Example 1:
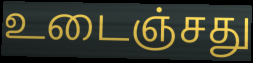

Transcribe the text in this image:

உடைஞ்சது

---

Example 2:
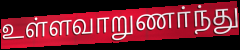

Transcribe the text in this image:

உள்ளவாறுணர்ந்து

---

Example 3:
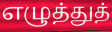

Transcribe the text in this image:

எழுத்துத்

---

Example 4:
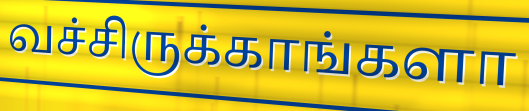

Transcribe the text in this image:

வச்சிருக்காங்களா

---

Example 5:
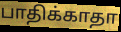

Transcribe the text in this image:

பாதிக்காதா